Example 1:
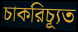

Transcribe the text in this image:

চাকরিচ্যূত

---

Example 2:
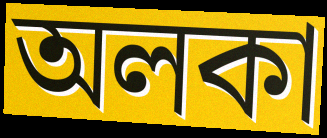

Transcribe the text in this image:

অলকা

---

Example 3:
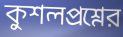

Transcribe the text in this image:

কুশলপ্রশ্নের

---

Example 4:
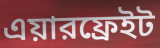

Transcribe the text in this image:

এয়ারফ্রেইট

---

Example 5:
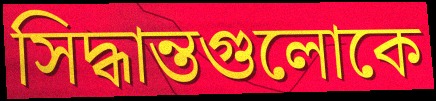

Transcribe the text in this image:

সিদ্ধান্তগুলোকে